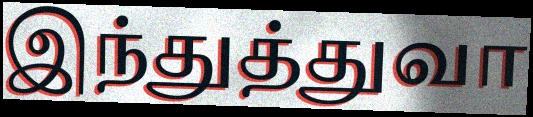
இந்துத்துவா